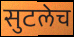
सुटलेच